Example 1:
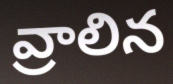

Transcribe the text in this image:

వ్రాలిన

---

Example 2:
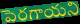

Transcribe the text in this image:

పెరగాయని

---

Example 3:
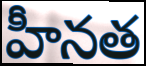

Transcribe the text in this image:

హీనత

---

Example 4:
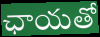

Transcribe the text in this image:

ఛాయతో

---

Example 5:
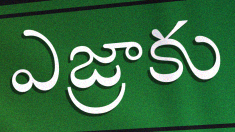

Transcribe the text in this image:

ఎజ్రాకు